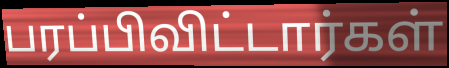
பரப்பிவிட்டார்கள்